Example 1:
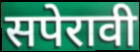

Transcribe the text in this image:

सपेरावी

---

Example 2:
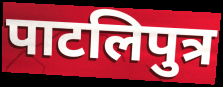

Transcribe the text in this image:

पाटलिपुत्र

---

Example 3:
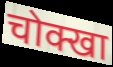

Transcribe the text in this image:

चोक्खा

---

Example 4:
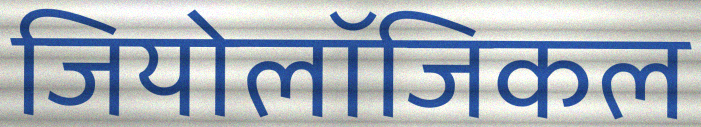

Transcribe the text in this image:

जियोलॉजिकल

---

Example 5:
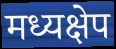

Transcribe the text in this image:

मध्यक्षेप